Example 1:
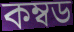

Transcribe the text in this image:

কম্বড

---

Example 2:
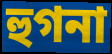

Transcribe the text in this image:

হুগনা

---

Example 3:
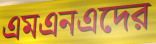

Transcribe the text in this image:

এমএনএদের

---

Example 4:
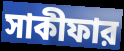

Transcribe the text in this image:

সাকীফার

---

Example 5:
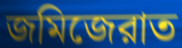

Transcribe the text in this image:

জমিজেরাত